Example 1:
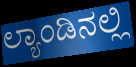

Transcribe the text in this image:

ಲ್ಯಾಂಡಿನಲ್ಲಿ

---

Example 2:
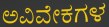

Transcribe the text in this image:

ಅವಿವೇಕಗಳ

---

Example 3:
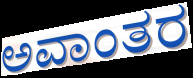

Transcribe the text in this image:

ಅವಾಂತರ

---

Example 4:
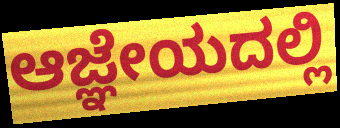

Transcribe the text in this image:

ಆಜ್ಞೇಯದಲ್ಲಿ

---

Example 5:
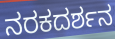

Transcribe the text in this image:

ನರಕದರ್ಶನ